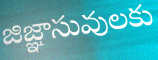
జిజ్ఞాసువులకు